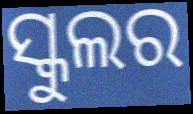
ସ୍କୁଲର